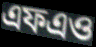
এফএও